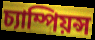
চ্যাম্পিয়ন্স